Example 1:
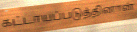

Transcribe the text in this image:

கட்டாயப்படுத்தினான்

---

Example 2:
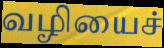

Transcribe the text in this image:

வழியைச்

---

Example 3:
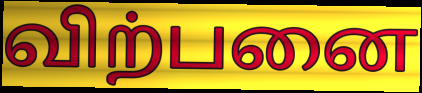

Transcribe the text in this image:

விற்பனை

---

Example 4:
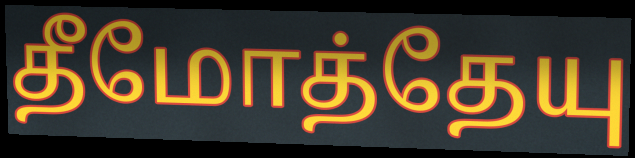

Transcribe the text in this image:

தீமோத்தேயு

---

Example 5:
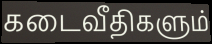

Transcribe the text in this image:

கடைவீதிகளும்